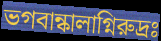
ভগবান্কালাগ্নিরুদ্রঃ